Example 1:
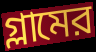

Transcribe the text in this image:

গ্লামের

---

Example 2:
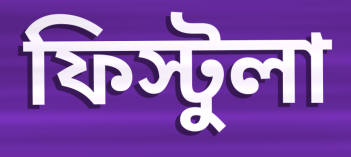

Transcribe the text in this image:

ফিস্টুলা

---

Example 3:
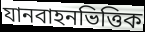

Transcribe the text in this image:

যানবাহনভিত্তিক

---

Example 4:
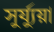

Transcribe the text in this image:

সুর্য্যুয়া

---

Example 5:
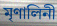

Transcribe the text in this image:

মৃণালিনী